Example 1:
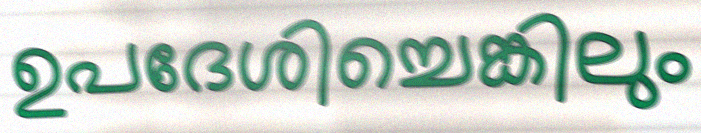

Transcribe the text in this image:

ഉപദേശിച്ചെങ്കിലും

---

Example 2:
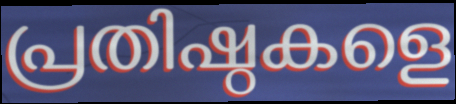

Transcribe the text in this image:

പ്രതിഷ്ഠകളെ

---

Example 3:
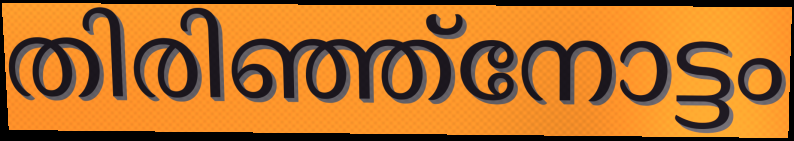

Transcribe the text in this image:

തിരിഞ്ഞ്നോട്ടം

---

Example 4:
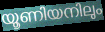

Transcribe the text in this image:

യൂണിയനിലും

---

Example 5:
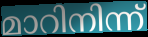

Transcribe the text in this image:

മാറിനിന്ന്